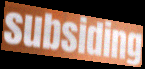
subsiding